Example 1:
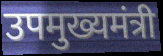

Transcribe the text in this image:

उपमुख्यमंत्री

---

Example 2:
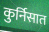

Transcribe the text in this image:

कुर्निसात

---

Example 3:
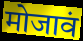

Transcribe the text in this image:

मोजावं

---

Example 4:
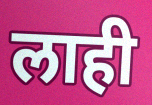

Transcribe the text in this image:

लाही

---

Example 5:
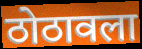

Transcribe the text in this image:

ठोठावला